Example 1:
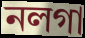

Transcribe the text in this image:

নলগা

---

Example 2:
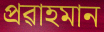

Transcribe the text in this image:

প্ৰৱাহমান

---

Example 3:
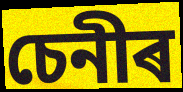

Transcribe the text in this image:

চেনীৰ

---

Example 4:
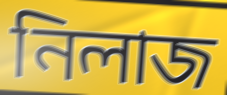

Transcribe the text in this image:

নিলাজ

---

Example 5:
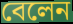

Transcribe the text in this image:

বেলেন